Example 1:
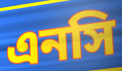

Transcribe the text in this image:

এনসি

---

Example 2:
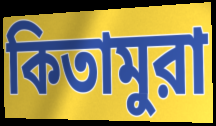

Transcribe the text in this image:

কিতামুরা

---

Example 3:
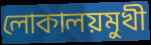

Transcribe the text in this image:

লোকালয়মুখী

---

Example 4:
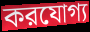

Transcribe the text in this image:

করযোগ্য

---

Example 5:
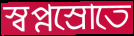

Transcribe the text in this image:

স্বপ্নস্রোতে